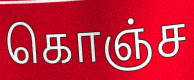
கொஞ்ச